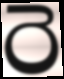
రె